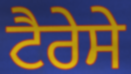
ਟੈਰੇਸੇ